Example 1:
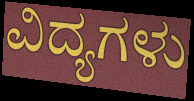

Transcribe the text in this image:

ವಿದ್ಯಗಳು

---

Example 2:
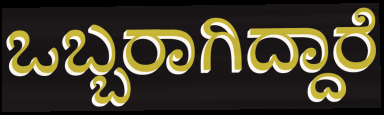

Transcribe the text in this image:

ಒಬ್ಬರಾಗಿದ್ದಾರೆ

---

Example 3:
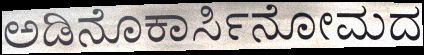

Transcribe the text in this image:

ಅಡಿನೊಕಾರ್ಸಿನೋಮದ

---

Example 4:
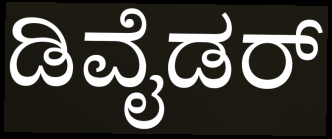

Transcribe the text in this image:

ಡಿವೈಡರ್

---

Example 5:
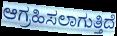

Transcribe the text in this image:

ಆಗ್ರಹಿಸಲಾಗುತ್ತಿದೆ